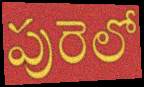
పురెలో